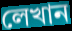
লেখান